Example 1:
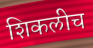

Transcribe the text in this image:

शिकलीच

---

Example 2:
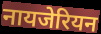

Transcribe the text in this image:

नायजेरियन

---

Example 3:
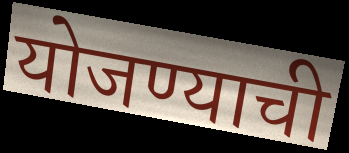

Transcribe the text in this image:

योजण्याची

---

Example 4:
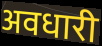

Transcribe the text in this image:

अवधारी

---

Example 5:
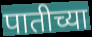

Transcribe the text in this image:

पातीच्या